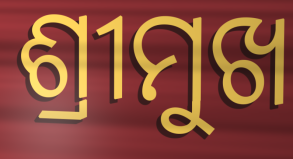
ଶ୍ରୀମୁଖ